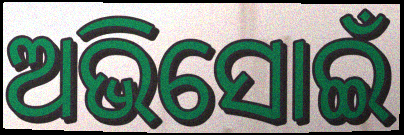
ଅଭିସୋଇଁ